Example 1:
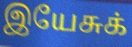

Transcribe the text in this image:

இயேசுக்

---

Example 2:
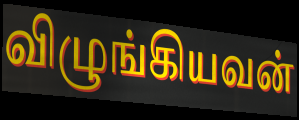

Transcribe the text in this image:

விழுங்கியவன்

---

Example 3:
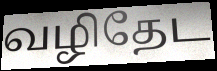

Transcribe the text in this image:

வழிதேட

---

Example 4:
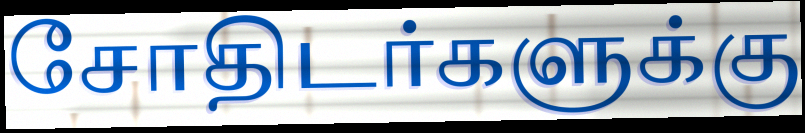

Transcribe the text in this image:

சோதிடர்களுக்கு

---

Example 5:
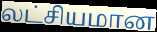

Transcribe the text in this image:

லட்சியமான